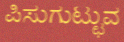
ಪಿಸುಗುಟ್ಟುವ